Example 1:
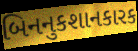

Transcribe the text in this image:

બિનનુકશાનકારક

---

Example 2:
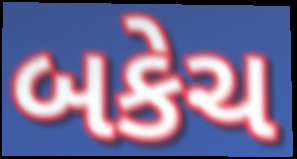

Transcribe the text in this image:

બકેચ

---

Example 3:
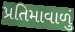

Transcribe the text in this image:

પ્રતિમાવાળું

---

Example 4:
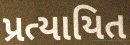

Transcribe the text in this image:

પ્રત્યાયિત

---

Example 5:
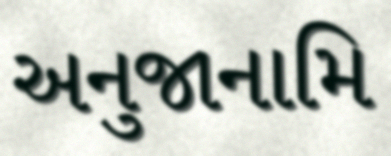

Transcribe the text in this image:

અનુજાનામિ